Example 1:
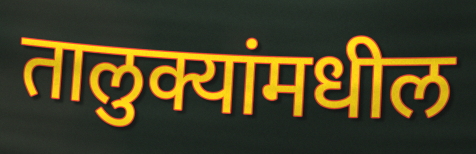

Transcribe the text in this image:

तालुक्यांमधील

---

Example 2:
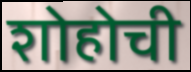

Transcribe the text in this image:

शोहोची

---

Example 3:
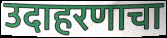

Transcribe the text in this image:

उदाहरणाचा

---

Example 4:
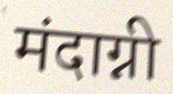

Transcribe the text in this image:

मंदाग्नी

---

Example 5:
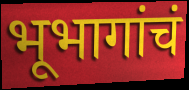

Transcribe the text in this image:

भूभागांचं